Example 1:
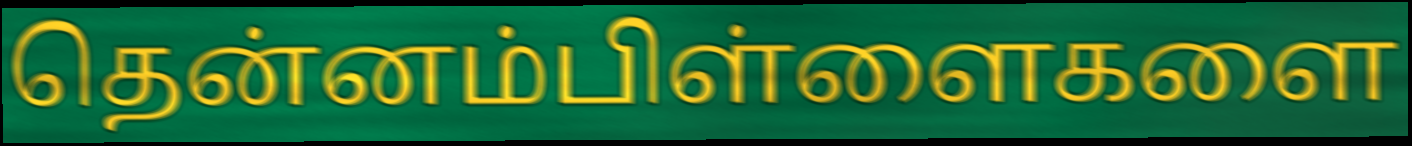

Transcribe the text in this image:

தென்னம்பிள்ளைகளை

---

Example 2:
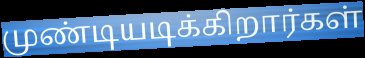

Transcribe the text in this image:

முண்டியடிக்கிறார்கள்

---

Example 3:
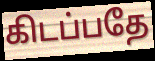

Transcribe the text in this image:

கிடப்பதே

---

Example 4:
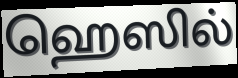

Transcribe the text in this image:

ஹெஸில்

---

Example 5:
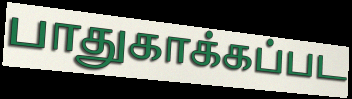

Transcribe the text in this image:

பாதுகாக்கப்பட